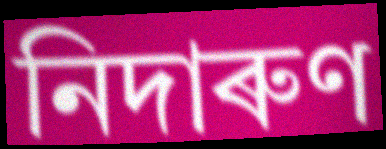
নিদাৰুণ